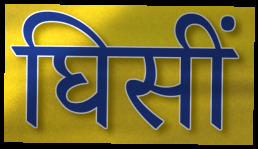
घिसीं